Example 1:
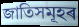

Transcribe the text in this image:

জাতিসমূহৰ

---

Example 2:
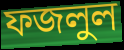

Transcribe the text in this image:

ফজলুল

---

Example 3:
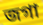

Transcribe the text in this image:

জগা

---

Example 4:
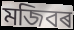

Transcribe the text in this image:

মজিবৰ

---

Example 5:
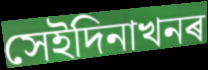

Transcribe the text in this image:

সেইদিনাখনৰ